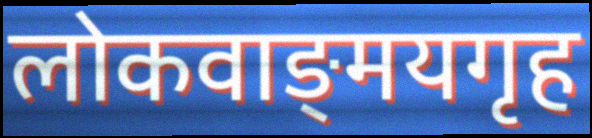
लोकवाङ्मयगृह